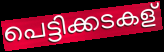
പെട്ടിക്കടകള്